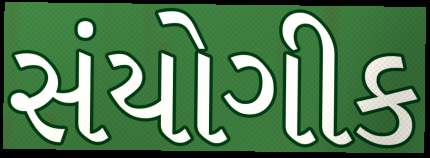
સંયોગીક